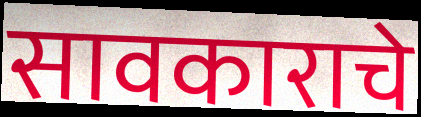
सावकाराचे